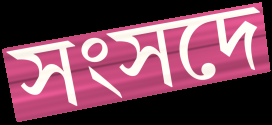
সংসদে